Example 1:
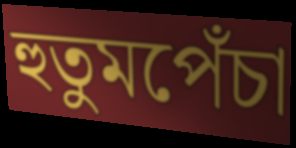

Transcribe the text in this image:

হুতুমপেঁচা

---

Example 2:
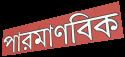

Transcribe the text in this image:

পারমাণবিক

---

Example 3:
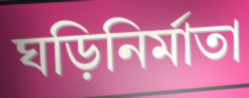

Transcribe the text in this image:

ঘড়িনির্মাতা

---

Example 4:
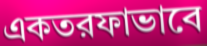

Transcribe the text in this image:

একতরফাভাবে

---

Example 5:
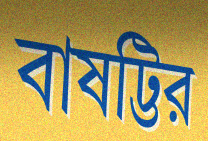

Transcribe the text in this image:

বাষট্টির